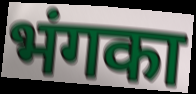
भंगका